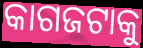
କାଗଜଟାକୁ